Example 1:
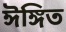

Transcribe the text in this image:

ঈঙ্গিত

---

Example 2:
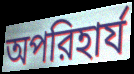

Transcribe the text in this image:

অপরিহার্য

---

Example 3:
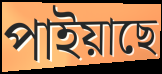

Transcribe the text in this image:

পাইয়াছে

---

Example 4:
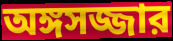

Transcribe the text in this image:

অঙ্গসজ্জার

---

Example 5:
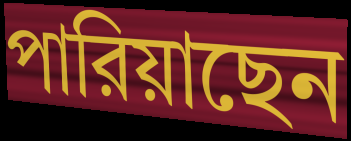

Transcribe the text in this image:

পারিয়াছেন